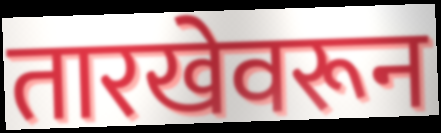
तारखेवरून